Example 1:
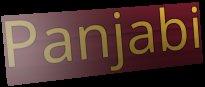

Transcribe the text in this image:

Panjabi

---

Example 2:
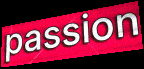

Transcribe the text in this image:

passion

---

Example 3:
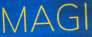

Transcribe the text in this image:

MAGI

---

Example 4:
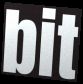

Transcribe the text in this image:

bit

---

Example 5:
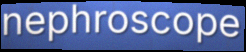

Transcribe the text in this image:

nephroscope